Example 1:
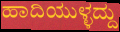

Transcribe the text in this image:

ಹಾದಿಯುಳ್ಳದ್ದು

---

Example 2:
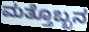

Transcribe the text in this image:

ಮತ್ತೊಬ್ಬನ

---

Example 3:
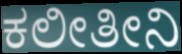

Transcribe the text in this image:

ಕಲೀತೀನಿ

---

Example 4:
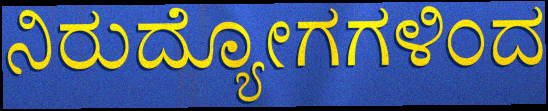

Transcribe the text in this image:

ನಿರುದ್ಯೋಗಗಳಿಂದ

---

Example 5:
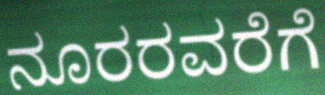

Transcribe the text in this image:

ನೂರರವರೆಗೆ